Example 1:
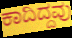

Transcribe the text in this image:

ಕಾದಿದ್ದವು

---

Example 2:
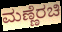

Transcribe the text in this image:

ಮಣ್ಣೆರಚಿ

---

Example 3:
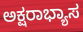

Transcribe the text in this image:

ಅಕ್ಷರಾಭ್ಯಾಸ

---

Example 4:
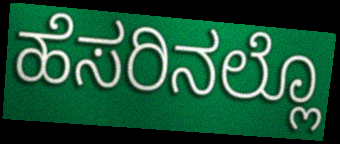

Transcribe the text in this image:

ಹೆಸರಿನಲ್ಲೊ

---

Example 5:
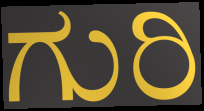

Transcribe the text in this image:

ಗುರಿ